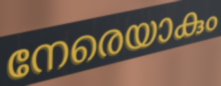
നേരെയാകും